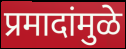
प्रमादांमुळे